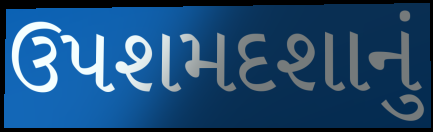
ઉપશમદશાનું